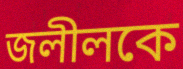
জলীলকে